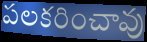
పలకరించావు